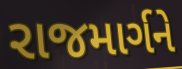
રાજમાર્ગને